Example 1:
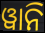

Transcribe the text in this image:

ୱାନି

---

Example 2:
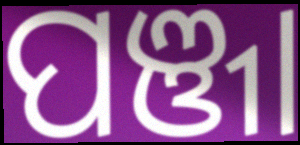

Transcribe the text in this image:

ପଞ୍ଜା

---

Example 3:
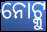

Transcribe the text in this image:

ନୋଟ୍କୁ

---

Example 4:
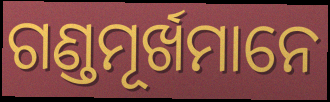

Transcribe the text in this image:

ଗଣ୍ଡମୂର୍ଖମାନେ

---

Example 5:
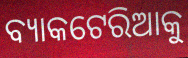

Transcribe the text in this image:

ବ୍ୟାକଟେରିଆକୁ